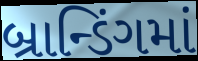
બ્રાન્ડિંગમાં